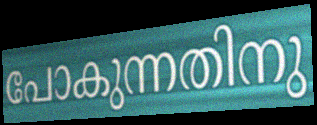
പോകുന്നതിനു